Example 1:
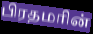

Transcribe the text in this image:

பிரதமரின்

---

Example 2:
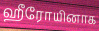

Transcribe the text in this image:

ஹீரோயினாக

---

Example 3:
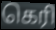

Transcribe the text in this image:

கெரி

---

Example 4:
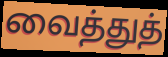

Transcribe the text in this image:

வைத்துத்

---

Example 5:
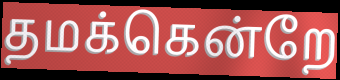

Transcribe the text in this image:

தமக்கென்றே